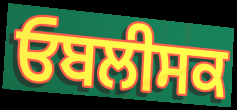
ਓਬਲੀਸਕ